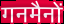
गनमैनों